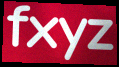
fxyz